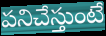
పనిచేస్తుంటే